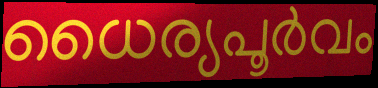
ധൈര്യപൂർവം